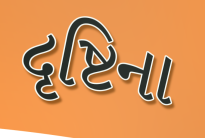
દૃષ્ટિના